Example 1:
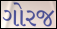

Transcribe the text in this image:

ગોરજ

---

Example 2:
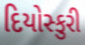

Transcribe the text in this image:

દિયોસ્કુરી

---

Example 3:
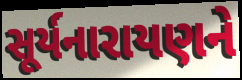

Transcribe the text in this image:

સૂર્યનારાયણને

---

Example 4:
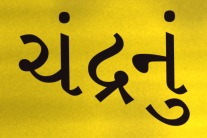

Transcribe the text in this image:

ચંદ્રનું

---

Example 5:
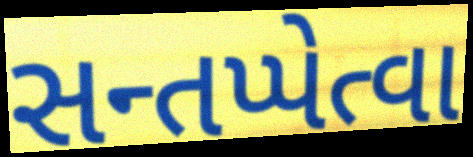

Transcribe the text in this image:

સન્તપ્પેત્વા